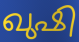
ഖുഷി